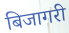
बिजागरी